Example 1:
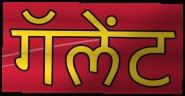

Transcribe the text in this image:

गॅलेंट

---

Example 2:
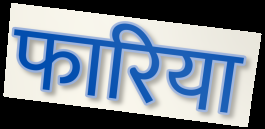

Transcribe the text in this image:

फारिया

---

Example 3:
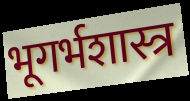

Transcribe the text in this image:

भूगर्भशास्त्र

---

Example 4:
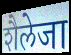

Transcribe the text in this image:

शैलेजा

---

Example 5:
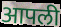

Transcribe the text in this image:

आपली